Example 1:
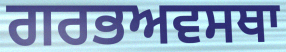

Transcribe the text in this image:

ਗਰਭਅਵਸਥਾ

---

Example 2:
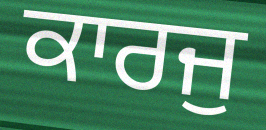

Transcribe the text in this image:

ਕਾਰਜੁ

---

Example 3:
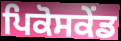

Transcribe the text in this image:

ਪਿਕੋਸਕੇਂਡ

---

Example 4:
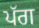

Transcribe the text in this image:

ਪੱਗ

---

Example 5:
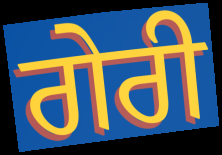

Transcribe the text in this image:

ਗੇਰੀ